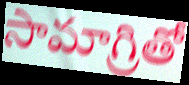
సామాగ్రితో